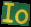
Io